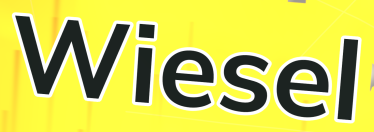
Wiesel